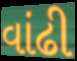
વાંઢી